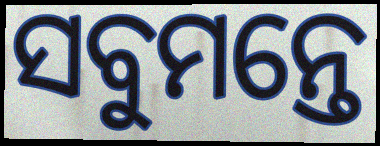
ସବୁମନ୍ତେ